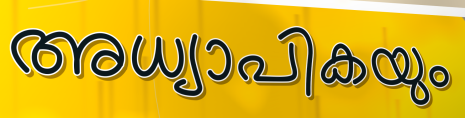
അധ്യാപികയും